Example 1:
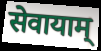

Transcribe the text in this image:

सेवायाम्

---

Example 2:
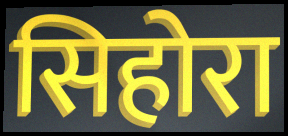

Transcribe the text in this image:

सिहोरा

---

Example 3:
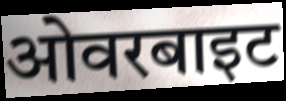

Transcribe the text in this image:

ओवरबाइट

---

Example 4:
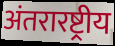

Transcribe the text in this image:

अंतरारष्ट्रीय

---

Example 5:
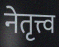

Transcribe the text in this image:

नेतृत्त्व